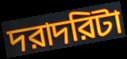
দরাদরিটা